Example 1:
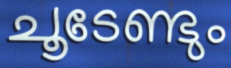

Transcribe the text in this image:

ചൂടേണ്ടും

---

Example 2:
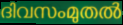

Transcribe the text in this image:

ദിവസംമുതൽ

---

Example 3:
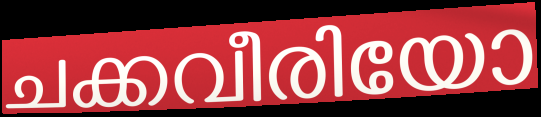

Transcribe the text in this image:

ചക്കവീരിയോ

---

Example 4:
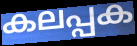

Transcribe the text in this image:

കലപ്പക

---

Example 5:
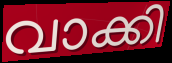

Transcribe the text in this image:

വാക്കി